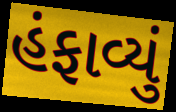
હંફાવ્યું